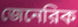
জেনেরিক